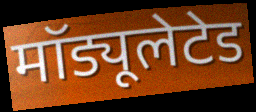
मॉड्यूलेटेड